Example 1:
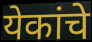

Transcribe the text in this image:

येकांचे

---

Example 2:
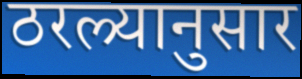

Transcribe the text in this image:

ठरल्यानुसार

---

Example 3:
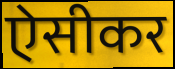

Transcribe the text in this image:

ऐसीकर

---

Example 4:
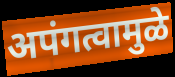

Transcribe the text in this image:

अपंगत्वामुळे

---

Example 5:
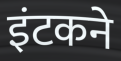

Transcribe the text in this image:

इंटकने